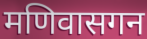
मणिवासगन